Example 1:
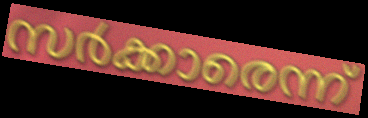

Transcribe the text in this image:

സർക്കാരെന്ന്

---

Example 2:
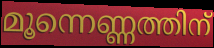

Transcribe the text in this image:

മൂന്നെണ്ണത്തിന്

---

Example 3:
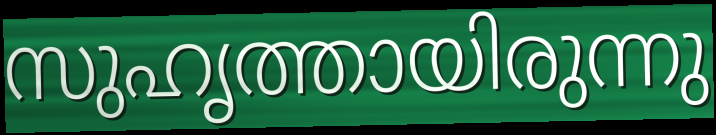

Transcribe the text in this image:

സുഹൃത്തായിരുന്നു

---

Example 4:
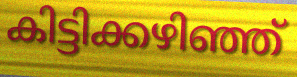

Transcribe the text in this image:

കിട്ടിക്കഴിഞ്ഞ്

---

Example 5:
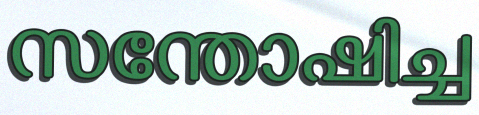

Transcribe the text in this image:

സന്തോഷിച്ച